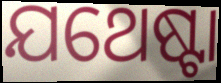
ଯଥେଷ୍ଟା